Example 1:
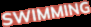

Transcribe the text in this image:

SWIMMING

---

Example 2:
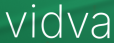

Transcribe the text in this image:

vidva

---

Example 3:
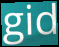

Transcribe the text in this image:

gid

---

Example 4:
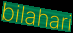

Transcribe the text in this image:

bilahari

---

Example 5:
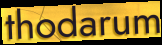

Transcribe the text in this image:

thodarum